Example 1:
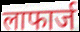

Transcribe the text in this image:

लाफार्ज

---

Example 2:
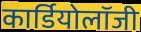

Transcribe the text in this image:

कार्डियोलॉजी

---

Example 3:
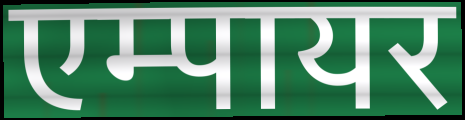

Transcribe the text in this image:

एम्पायर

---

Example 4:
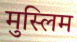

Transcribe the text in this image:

मुस्‍लिम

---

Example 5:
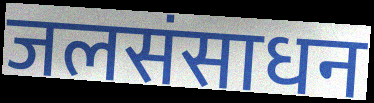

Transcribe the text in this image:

जलसंसाधन